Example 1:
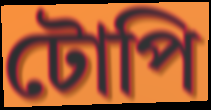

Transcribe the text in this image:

টোপি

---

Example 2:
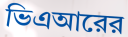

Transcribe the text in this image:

ভিএআরের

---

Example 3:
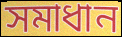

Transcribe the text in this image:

সমাধান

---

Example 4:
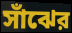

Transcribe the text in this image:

সাঁঝের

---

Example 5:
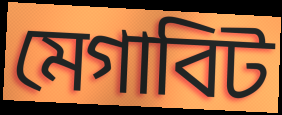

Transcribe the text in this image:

মেগাবিট